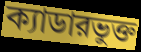
ক্যাডারভুক্ত